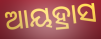
ଆୟହ୍ରାସ